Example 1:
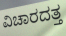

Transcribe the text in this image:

ವಿಚಾರದತ್ತ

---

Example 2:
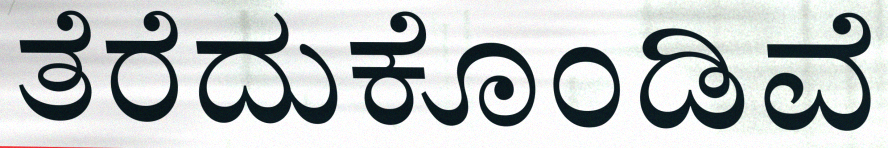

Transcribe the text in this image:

ತೆರೆದುಕೊಂಡಿವೆ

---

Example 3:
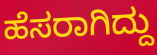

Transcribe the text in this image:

ಹೆಸರಾಗಿದ್ದು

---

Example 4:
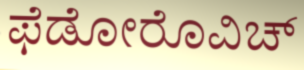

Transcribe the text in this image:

ಫೆಡೋರೊವಿಚ್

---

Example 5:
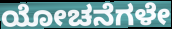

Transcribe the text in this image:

ಯೋಚನೆಗಳೇ